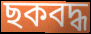
ছকবদ্ধ